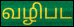
வழிபட